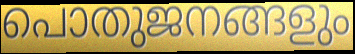
പൊതുജനങ്ങളും